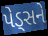
પેડ્સને